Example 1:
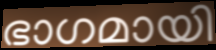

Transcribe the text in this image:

ഭാഗമായി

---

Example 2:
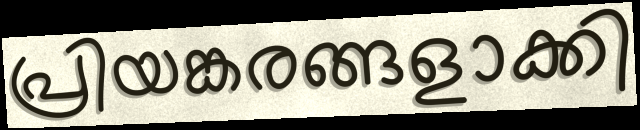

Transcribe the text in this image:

പ്രിയങ്കരങ്ങളാക്കി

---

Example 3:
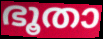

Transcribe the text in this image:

ഭൂതാ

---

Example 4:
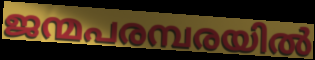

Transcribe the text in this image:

ജന്മപരമ്പരയിൽ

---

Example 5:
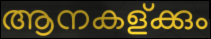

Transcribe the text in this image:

ആനകള്ക്കും